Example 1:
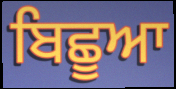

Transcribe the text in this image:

ਬਿਛੂਆ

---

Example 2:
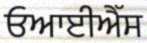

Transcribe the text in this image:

ਓਆਈਐੱਸ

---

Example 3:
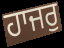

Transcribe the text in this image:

ਹਾਜਰੁ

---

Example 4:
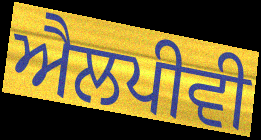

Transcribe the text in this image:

ਐਲਪੀਵੀ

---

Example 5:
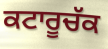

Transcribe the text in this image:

ਕਟਾਰੂਚੱਕ